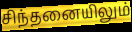
சிந்தனையிலும்